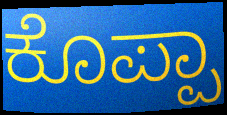
ಕೊಪ್ಪಾ